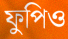
ফুপিও